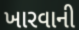
ખારવાની